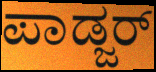
ಪಾಡ್ಜರ್